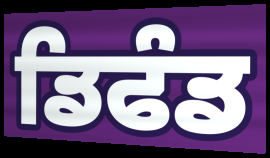
ਡਿਫੰਡ